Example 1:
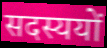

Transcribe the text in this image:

सदस्ययों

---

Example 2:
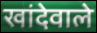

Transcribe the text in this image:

खांदेवाले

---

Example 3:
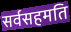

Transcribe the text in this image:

सर्वसहमति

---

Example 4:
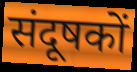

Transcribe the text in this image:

संदूषकों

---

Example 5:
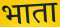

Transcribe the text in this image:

भाता